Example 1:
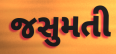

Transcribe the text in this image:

જસુમતી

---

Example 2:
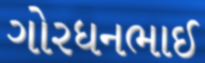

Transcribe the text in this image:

ગોરધનભાઈ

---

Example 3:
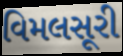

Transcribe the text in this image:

વિમલસૂરી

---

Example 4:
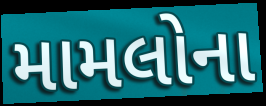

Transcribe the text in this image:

મામલોના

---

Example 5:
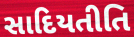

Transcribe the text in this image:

સાદિયતીતિ